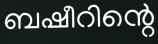
ബഷീറിന്റെ